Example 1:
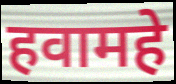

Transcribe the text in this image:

हवामहे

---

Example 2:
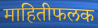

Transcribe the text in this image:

माहितीफलक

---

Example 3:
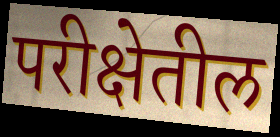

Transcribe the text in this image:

परीक्षेतील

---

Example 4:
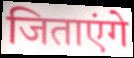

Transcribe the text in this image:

जिताएंगे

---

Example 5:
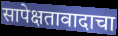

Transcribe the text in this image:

सापेक्षतावादाचा